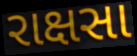
રાક્ષસા